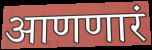
आणणारं